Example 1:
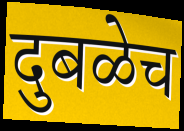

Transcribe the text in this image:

दुबळेच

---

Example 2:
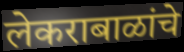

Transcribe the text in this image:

लेकराबाळांचे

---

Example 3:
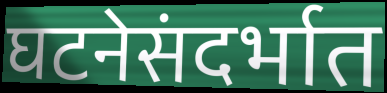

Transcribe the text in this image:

घटनेसंदर्भात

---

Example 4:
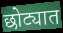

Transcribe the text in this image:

छोट्यात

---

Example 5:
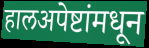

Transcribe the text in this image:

हालअपेष्टांमधून